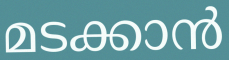
മടക്കാൻ